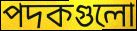
পদকগুলো